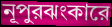
নূপুরঝংকারে